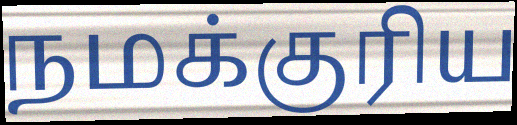
நமக்குரிய